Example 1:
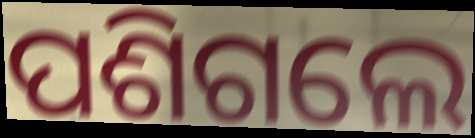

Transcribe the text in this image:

ପଶିଗଲେ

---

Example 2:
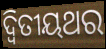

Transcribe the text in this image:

ଦ୍ବିତୀୟଥର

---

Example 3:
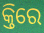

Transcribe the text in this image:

କ୍ତିରେ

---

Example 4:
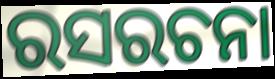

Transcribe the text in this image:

ରସରଚନା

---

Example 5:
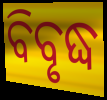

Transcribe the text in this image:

ବିବୃଦ୍ଧ